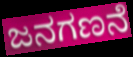
ಜನಗಣನೆ